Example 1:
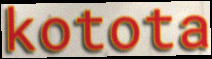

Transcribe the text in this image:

kotota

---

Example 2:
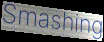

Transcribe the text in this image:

Smashing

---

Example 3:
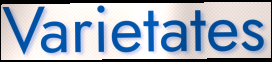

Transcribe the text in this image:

Varietates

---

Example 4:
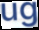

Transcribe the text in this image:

ug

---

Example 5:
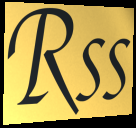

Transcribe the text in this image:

Rss